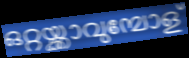
ഒറ്റയ്ക്കാവുമ്പോള്